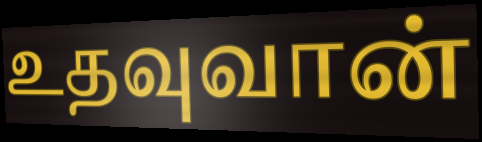
உதவுவான்